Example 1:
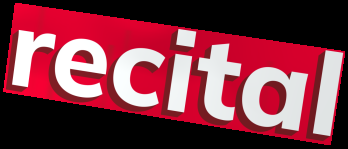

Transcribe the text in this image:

recital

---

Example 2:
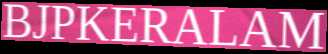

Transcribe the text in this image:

BJPKERALAM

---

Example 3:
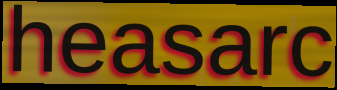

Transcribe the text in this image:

heasarc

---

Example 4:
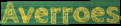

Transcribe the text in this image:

Averroes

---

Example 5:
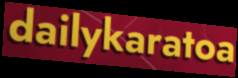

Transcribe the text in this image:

dailykaratoa